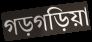
গড়গড়িয়া